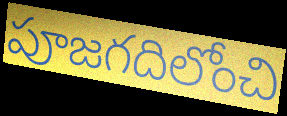
పూజగదిలోంచి